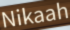
Nikaah